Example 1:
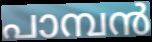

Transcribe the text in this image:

പാമ്പൻ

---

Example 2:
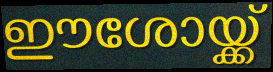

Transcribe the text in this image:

ഈശോയ്ക്ക്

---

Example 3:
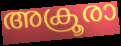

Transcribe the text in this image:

അക്രൂരാ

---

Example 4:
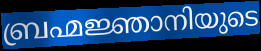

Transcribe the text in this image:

ബ്രഹ്മജ്ഞാനിയുടെ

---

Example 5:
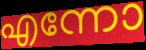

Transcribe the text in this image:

എന്നോ